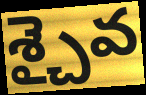
శ్చైవ